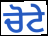
ਚੋਟੇ